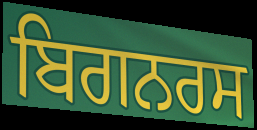
ਬਿਗਨਰਸ